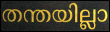
തന്തയില്ലാ